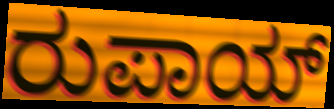
ರುಪಾಯ್